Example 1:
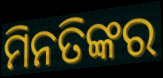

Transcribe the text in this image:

ମିନତିଙ୍କର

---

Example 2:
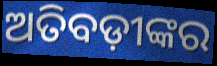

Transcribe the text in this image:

ଅତିବଡ଼ୀଙ୍କର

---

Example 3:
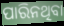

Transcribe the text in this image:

ପାରିନଥିବା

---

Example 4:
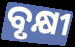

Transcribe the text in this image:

ବୃକ୍ଷୀ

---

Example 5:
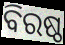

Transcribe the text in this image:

ବିରଷ୍ଠ